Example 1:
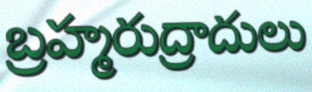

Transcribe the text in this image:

బ్రహ్మరుద్రాదులు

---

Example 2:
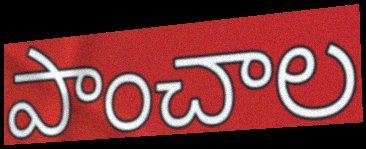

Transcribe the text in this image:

పాంచాల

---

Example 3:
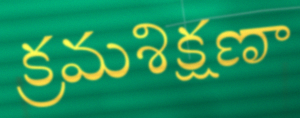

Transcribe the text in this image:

క్రమశిక్షణా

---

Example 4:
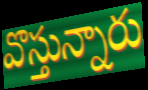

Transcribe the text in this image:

వొస్తున్నారు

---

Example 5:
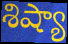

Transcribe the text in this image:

శిష్యా